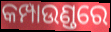
କମ୍ପାଉଣ୍ଡରେ